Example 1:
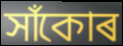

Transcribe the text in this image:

সাঁকোৰ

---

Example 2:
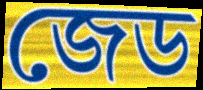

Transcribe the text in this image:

জেড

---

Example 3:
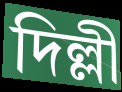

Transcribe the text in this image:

দিল্লী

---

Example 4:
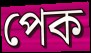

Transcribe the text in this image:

পেক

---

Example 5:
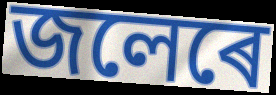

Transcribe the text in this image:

জলেৰে